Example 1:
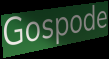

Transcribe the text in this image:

Gospode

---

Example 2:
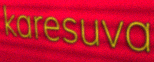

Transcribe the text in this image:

karesuva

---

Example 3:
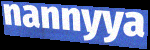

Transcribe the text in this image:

nannyya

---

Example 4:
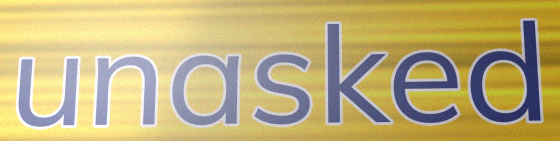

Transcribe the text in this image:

unasked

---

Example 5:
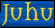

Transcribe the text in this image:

Juhu